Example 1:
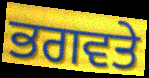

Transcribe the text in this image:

ਭਗਵਤੇ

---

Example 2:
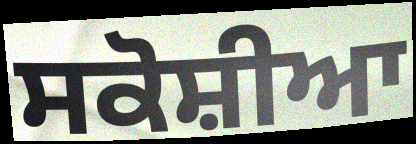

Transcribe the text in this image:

ਸਕੋਸ਼ੀਆ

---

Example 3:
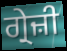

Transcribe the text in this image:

ਗ੍ਰੇਜ਼ੀ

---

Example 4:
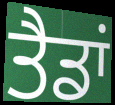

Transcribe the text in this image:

ਤੈਡਾਂ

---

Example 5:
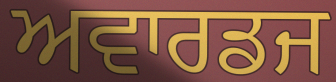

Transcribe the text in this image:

ਅਵਾਰਡਜ